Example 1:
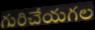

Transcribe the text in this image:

గురిచేయగల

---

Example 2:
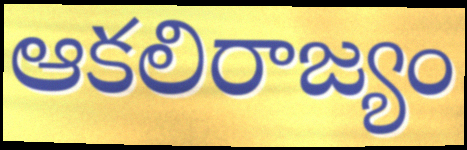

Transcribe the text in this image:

ఆకలిరాజ్యం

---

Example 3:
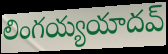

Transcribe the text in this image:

లింగయ్యయాదవ్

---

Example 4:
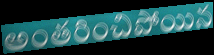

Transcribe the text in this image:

అంతరించిపోయిన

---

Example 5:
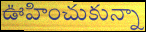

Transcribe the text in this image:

ఊహించుకున్నా